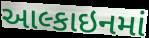
આલ્કાઇનમાં